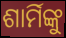
ଶାର୍ମିଙ୍କୁ